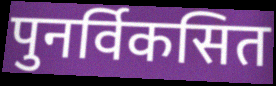
पुनर्विकसित